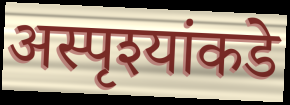
अस्पृश्यांकडे